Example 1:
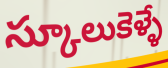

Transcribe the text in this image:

స్కూలుకెళ్ళే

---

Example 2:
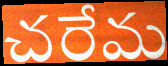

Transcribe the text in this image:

చరేమ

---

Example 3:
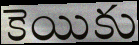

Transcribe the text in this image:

కెయికు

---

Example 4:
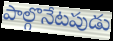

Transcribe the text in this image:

పాల్గొనేటపుడు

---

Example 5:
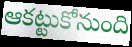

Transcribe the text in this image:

ఆకట్టుకోనుంది